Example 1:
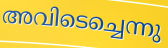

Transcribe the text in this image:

അവിടെച്ചെന്നു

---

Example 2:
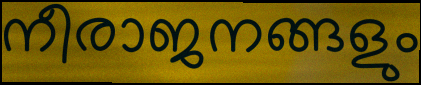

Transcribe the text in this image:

നീരാജനങ്ങളും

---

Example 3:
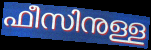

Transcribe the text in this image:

ഫീസിനുള്ള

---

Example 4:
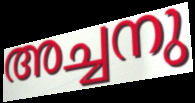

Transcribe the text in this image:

അച്ചനു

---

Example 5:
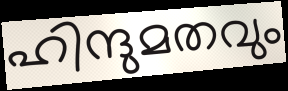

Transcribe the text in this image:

ഹിന്ദുമതവും